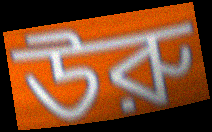
উরু